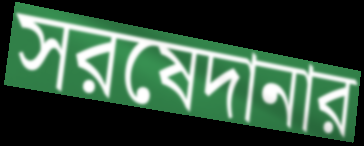
সরষেদানার